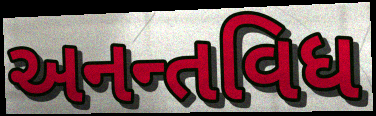
અનન્તવિધ